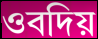
ওবদিয়